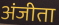
अंजीता